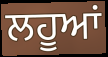
ਲਹੂਆਂ